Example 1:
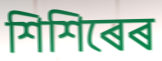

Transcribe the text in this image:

শিশিৰেৰ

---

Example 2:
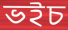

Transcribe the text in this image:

ভইচ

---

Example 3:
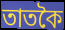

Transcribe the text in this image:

তাতকৈ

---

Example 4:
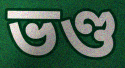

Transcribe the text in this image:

ভণ্ড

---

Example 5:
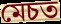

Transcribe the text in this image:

মেচত